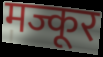
मज्कूर